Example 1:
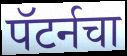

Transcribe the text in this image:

पॅटर्नचा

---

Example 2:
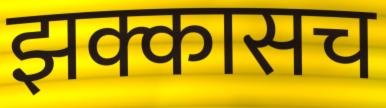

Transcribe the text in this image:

झक्कासच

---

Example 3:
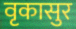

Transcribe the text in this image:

वृकासुर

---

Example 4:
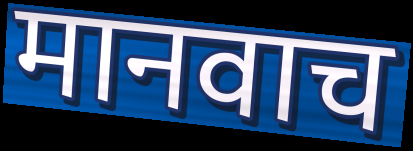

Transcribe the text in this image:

मानवाच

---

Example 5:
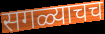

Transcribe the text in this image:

सगळ्याचच